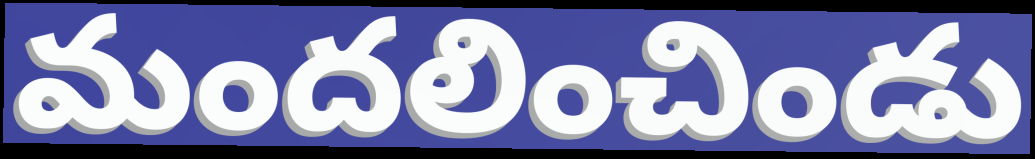
మందలించిండు